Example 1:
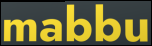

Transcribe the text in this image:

mabbu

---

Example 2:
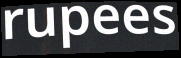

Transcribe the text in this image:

rupees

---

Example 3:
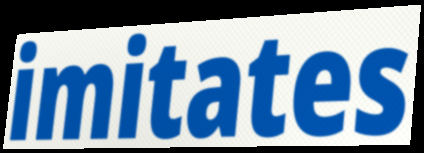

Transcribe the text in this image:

imitates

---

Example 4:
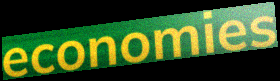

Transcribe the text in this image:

economies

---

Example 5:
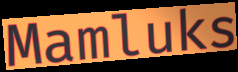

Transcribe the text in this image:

Mamluks